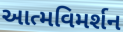
આત્મવિમર્શન